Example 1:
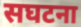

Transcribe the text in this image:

सघटना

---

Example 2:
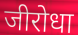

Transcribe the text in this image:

जीरोधा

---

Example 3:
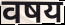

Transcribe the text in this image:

वषय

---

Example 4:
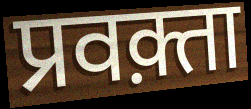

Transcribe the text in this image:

प्रवक़्ता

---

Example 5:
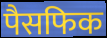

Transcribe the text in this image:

पैसफिक